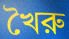
খৈরু